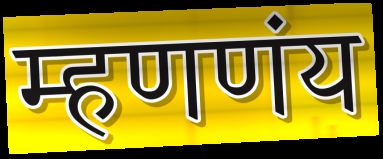
म्हणणंय